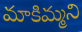
మాకిమ్మని